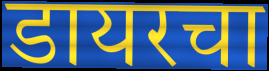
डायरचा